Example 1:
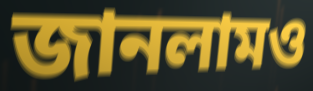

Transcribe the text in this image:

জানলামও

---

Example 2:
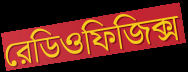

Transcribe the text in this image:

রেডিওফিজিক্স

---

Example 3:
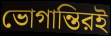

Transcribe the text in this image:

ভোগান্তিরই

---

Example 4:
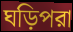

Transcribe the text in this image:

ঘড়িপরা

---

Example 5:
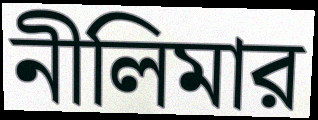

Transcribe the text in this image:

নীলিমার